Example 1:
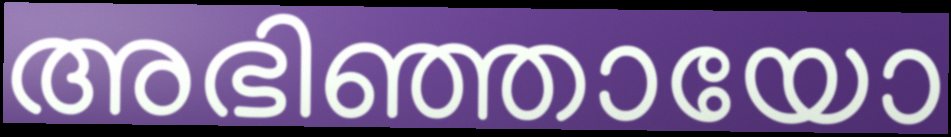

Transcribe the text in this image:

അഭിഞ്ഞായോ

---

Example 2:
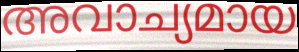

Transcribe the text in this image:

അവാച്യമായ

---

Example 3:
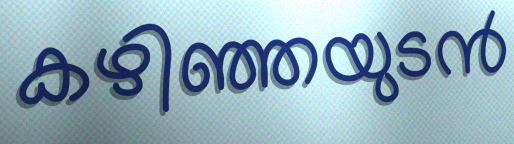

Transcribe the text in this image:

കഴിഞ്ഞയുടൻ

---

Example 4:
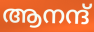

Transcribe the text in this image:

ആനന്ദ്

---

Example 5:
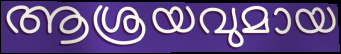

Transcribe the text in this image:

ആശ്രയവുമായ